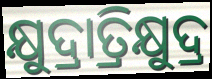
କ୍ଷୁଦ୍ରାତ୍ରିକ୍ଷୁଦ୍ର